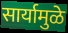
सार्यामुळे